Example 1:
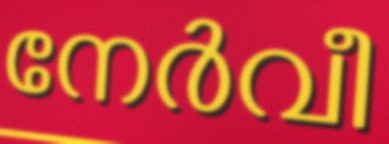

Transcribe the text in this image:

നേർവീ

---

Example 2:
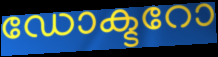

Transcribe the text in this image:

ഡോക്ടറോ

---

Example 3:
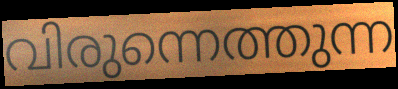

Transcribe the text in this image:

വിരുന്നെത്തുന്ന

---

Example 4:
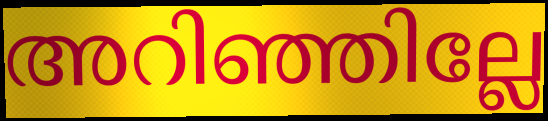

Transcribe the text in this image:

അറിഞ്ഞില്ലേ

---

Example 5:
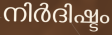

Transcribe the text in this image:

നിർദിഷ്ടം